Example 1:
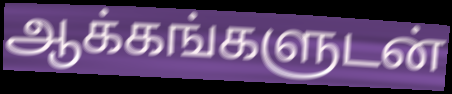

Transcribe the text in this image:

ஆக்கங்களுடன்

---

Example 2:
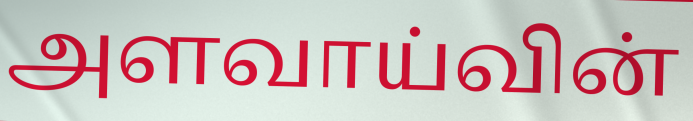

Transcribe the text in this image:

அளவாய்வின்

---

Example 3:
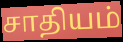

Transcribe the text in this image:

சாதியம்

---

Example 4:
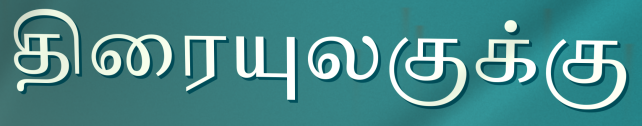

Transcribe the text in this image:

திரையுலகுக்கு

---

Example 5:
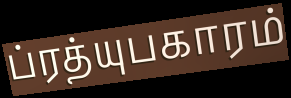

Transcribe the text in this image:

ப்ரத்யுபகாரம்